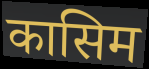
कासिम